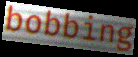
bobbing